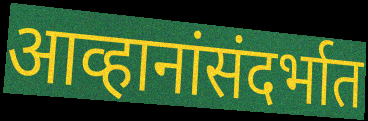
आव्हानांसंदर्भात